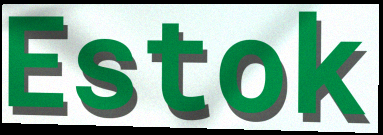
Estok